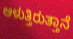
ಆಳುತ್ತಿರುತ್ತಾನೆ